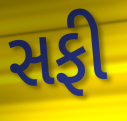
સફી